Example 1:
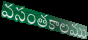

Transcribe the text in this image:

వసంతకాలము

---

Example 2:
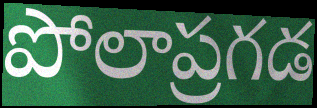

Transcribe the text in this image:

పోలాప్రగడ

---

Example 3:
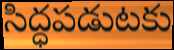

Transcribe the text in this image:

సిద్ధపడుటకు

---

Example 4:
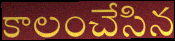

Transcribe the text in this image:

కాలంచేసిన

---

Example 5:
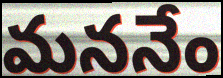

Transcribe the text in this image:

మననేం